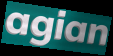
agian